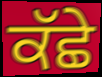
ਕੱਛੇ